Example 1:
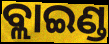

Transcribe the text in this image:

ବ୍ଲାଇଣ୍ଡ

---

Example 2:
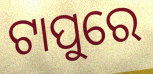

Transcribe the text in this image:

ଟାପୁରେ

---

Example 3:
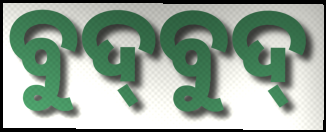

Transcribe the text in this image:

ବୁଦ୍‍ବୁଦ୍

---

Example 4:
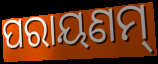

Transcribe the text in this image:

ପରାୟଣମ୍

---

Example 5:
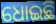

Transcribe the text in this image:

ଧୋଇଛି